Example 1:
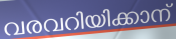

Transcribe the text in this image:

വരവറിയിക്കാന്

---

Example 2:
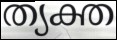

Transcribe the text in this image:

ത്യക്ത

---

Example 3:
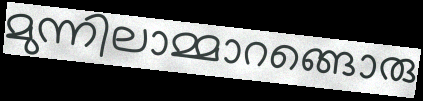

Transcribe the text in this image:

മുന്നിലാമ്മാറങ്ങൊരു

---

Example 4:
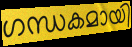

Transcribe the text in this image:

ഗന്ധകമായി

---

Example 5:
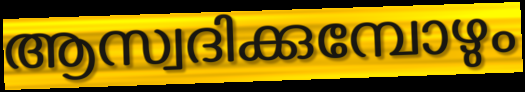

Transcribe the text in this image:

ആസ്വദിക്കുമ്പോഴും